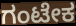
ಗಂಟೇಕ